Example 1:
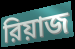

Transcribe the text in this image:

রিয়াজ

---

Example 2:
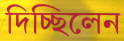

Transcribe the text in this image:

দিচ্ছিলেন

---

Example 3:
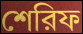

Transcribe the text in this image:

শেরিফ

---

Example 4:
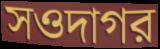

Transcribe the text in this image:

সওদাগর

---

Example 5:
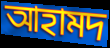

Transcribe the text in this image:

আহামদ